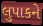
લુપાકને